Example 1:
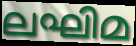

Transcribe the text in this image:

ലഘിമ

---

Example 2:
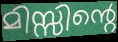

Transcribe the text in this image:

മിസ്സിന്റെ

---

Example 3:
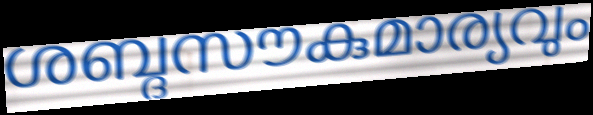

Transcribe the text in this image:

ശബ്ദസൗകുമാര്യവും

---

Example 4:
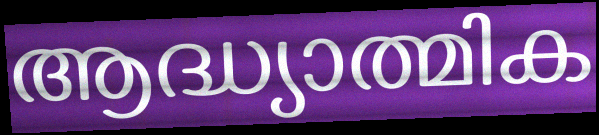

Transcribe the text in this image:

ആദ്ധ്യാത്മിക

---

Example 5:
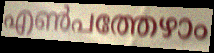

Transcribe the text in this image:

എൺപത്തേഴാം